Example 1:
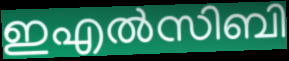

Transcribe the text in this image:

ഇഎൽസിബി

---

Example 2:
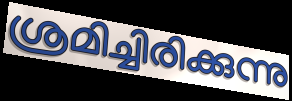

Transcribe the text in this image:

ശ്രമിച്ചിരിക്കുന്നു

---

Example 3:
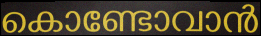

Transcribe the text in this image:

കൊണ്ടോവാൻ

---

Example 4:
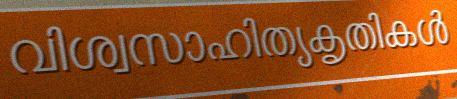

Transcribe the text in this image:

വിശ്വസാഹിത്യകൃതികൾ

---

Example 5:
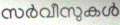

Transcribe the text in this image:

സർവീസുകൾ